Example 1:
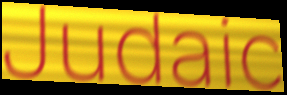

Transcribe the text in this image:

Judaic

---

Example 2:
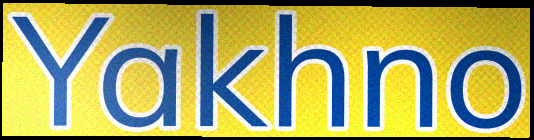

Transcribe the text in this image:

Yakhno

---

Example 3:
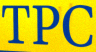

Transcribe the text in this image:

TPC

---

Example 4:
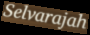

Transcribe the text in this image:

Selvarajah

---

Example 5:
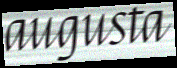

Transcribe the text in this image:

augusta